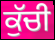
ਕੁੱਚੀ